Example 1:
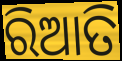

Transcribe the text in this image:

ରିଆତି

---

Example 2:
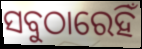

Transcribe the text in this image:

ସବୁଠାରେହିଁ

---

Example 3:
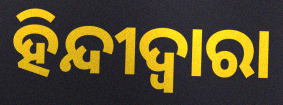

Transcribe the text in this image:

ହିନ୍ଦୀଦ୍ଵାରା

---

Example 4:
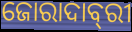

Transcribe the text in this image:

ଜୋରାଦାବ୍‌ରୀ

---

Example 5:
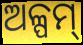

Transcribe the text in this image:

ଅଳ୍ପମ୍